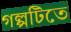
গল্পটিতে